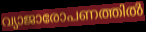
വ്യാജാരോപണത്തിൽ